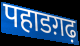
पहाडग़ढ़